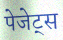
पेजेट्स